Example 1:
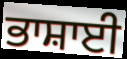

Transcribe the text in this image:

ਭਾਸ਼ਾਈ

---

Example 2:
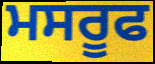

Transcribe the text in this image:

ਮਸਰੂਫ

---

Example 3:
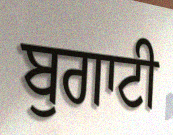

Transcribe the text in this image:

ਬੁਗਾਟੀ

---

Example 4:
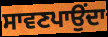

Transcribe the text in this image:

ਸਾਵਣਪਾਉਂਦਾ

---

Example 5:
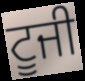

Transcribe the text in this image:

ਟੂਜੀ